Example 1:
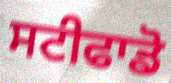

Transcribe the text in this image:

ਸਟੀਫਾਡੋ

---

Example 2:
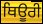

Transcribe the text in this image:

ਥਿਊਰੀ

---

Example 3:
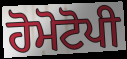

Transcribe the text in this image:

ਹੋਮੋਟੋਪੀ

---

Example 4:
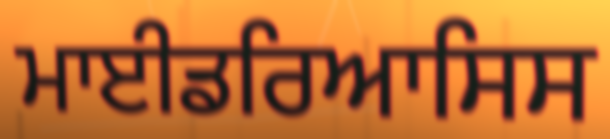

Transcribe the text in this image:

ਮਾਈਡਰਿਆਸਿਸ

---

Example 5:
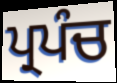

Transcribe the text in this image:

ਪ੍ਰਪੰਚ